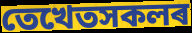
তেখেতসকলৰ